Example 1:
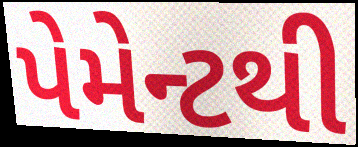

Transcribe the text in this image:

પેમેન્ટથી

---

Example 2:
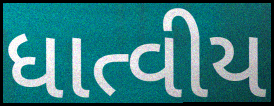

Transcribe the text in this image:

ધાત્વીય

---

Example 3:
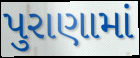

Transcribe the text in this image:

પુરાણામાં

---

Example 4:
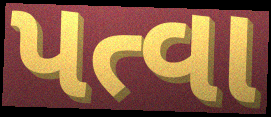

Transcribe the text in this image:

પત્વા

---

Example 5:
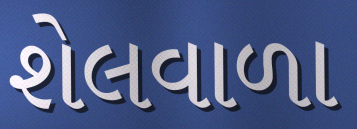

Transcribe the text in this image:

શેલવાળા